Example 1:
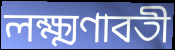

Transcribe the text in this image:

লক্ষ্মণাবতী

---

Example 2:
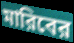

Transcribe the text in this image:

মারিবের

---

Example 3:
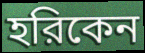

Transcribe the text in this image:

হরিকেন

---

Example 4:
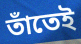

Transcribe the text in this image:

তাঁতেই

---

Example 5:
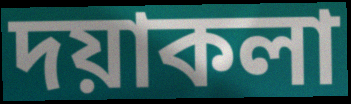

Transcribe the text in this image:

দয়াকলা